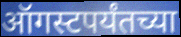
ऑगस्टपर्यंतच्या